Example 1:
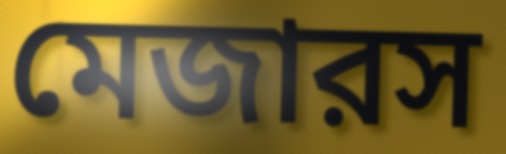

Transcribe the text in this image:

মেজারস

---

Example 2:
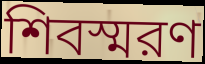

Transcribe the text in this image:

শিবস্মরণ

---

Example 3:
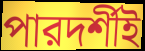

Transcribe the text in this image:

পারদর্শীই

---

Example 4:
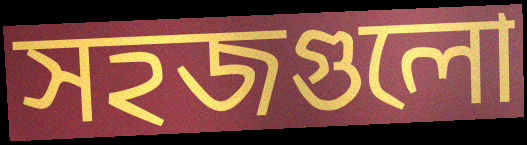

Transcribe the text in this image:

সহজগুলো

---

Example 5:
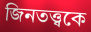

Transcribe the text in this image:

জিনতত্ত্বকে